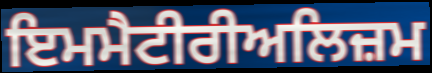
ਇਮਮੈਟੀਰੀਅਲਿਜ਼ਮ